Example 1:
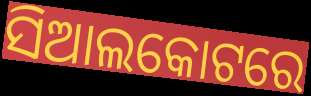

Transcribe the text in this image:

ସିଆଲକୋଟରେ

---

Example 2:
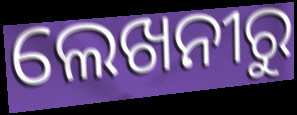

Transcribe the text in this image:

ଲେଖନୀରୁ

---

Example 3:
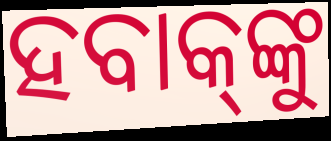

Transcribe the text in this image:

ହବାକ୍‌ଙ୍କୁ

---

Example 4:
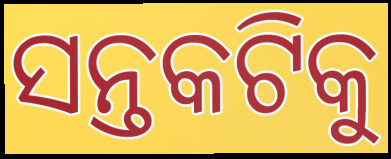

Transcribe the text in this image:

ସନ୍ତକଟିକୁ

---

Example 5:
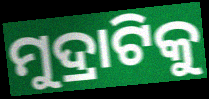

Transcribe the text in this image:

ମୁଦ୍ରାଟିକୁ